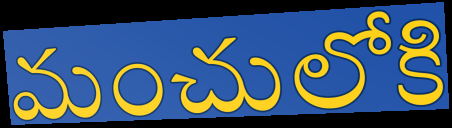
మంచులోకి